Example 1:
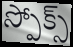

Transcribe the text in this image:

స్పోక్స్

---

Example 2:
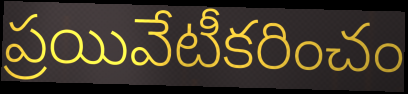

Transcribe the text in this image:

ప్రయివేటీకరించం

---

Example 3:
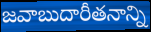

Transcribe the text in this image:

జవాబుదారీతనాన్ని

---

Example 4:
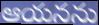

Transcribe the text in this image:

ఆయనను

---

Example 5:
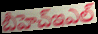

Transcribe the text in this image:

బీహెచ్ఇఎల్